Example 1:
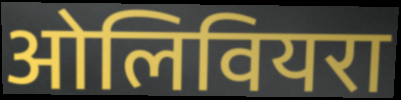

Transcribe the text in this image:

ओलिवियरा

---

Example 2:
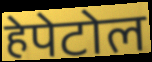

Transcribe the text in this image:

हेपेटोल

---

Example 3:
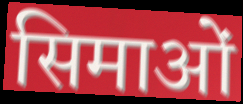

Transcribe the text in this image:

सिमाओं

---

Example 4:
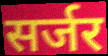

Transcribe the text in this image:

सर्जर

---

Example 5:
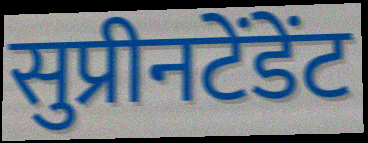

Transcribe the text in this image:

सुप्रीनटेंडेंट